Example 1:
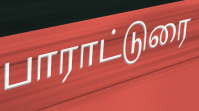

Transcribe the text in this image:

பாராட்டுரை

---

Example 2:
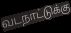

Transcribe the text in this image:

வடநாட்டுக்கு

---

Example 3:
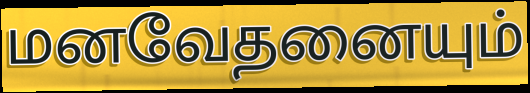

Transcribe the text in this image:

மனவேதனையும்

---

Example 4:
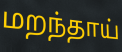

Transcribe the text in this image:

மறந்தாய்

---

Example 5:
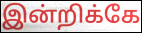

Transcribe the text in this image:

இன்றிக்கே